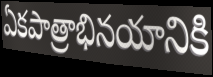
ఏకపాత్రాభినయానికి